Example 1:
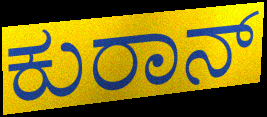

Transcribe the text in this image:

ಕುರಾನ್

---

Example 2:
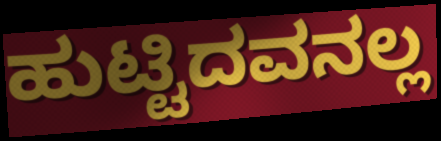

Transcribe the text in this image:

ಹುಟ್ಟಿದವನಲ್ಲ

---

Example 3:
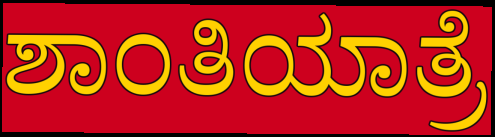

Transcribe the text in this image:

ಶಾಂತಿಯಾತ್ರೆ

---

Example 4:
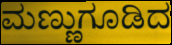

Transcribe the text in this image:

ಮಣ್ಣುಗೂಡಿದ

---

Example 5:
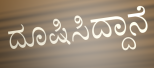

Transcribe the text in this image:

ದೂಷಿಸಿದ್ದಾನೆ